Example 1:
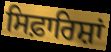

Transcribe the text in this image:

ਸਿਫ਼ਾਰਿਸ਼ਾਂ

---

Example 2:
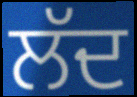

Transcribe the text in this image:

ਲੱਦ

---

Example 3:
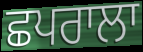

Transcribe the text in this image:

ਛਪਰਾਲਾ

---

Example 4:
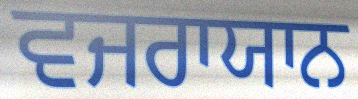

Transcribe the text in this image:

ਵਜਰਾਯਾਨ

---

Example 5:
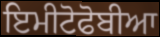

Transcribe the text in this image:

ਇਮੀਟੋਫੋਬੀਆ